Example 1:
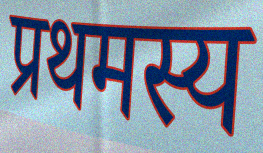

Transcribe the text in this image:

प्रथमस्य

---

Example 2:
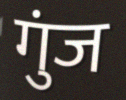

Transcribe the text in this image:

गुंज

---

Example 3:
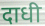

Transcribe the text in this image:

दाधी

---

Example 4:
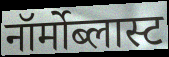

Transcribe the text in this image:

नॉर्मोब्लास्ट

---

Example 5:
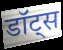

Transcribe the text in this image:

डॉट्स